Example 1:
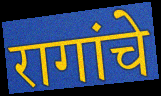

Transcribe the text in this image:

रागांचे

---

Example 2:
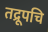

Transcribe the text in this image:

तद्रूपचि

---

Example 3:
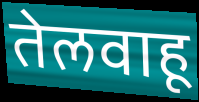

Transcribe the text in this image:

तेलवाहू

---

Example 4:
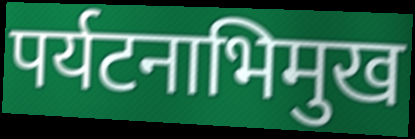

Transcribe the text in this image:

पर्यटनाभिमुख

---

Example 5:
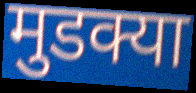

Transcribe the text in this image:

मुडक्या